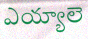
ఎయ్యాలె